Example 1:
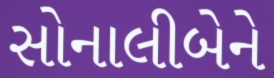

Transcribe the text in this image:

સોનાલીબેને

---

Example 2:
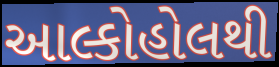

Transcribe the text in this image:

આલ્કોહોલથી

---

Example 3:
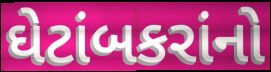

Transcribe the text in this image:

ઘેટાંબકરાંનો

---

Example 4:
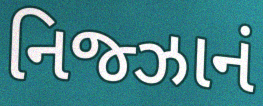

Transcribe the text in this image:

નિજ્ઝાનં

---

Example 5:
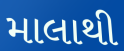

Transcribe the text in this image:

માલાથી